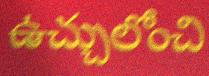
ఉచ్చులోంచి